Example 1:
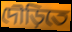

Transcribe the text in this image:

দৌড়িতে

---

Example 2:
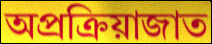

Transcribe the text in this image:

অপ্রক্রিয়াজাত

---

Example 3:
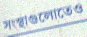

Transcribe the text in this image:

সংস্থাগুলোতেও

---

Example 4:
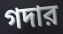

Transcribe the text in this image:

গদার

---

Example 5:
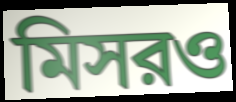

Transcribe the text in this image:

মিসরও